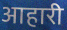
आहारी